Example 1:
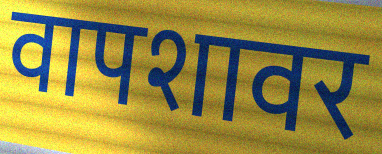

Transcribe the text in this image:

वापशावर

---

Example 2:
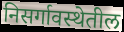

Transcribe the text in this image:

निसर्गावस्थेतील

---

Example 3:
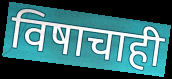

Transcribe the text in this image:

विषाचाही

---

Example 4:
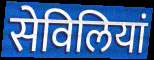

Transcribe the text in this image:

सेविलियां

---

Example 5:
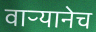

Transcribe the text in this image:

वाऱ्यानेच